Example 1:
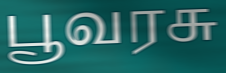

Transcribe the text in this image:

பூவரசு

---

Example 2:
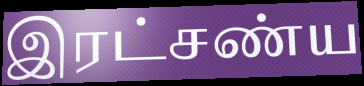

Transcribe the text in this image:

இரட்சண்ய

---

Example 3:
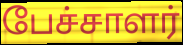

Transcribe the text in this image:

பேச்சாளர்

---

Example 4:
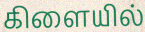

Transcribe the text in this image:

கிளையில்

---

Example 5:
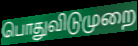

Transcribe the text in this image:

பொதுவிடுமுறை